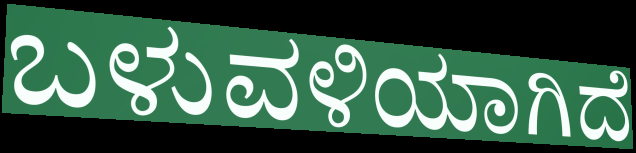
ಬಳುವಳಿಯಾಗಿದೆ